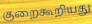
குறைகூறியது